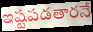
ఇష్టపడతారనే